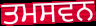
ਤਮਸਵਨ